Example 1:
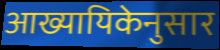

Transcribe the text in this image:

आख्यायिकेनुसार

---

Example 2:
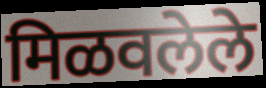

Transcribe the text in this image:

मिळवलेले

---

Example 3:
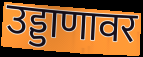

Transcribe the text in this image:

उड्डाणावर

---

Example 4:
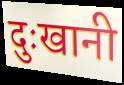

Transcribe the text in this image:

दुःखानी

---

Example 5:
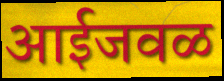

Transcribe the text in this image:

आईजवळ